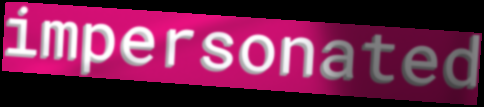
impersonated